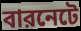
বারনেটে